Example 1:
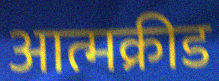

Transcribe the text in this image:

आत्मक्रीड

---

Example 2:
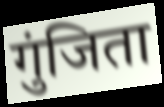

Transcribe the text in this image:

गुंजिता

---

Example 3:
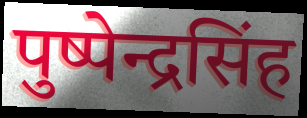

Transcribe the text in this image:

पुष्पेन्द्रसिंह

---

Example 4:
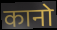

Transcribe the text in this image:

कानो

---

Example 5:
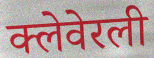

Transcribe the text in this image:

क्लेवेरली